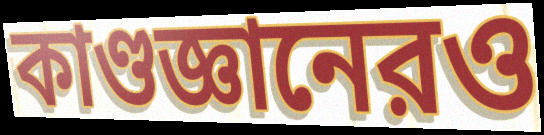
কাণ্ডজ্ঞানেরও